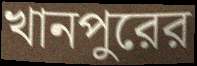
খানপুরের